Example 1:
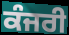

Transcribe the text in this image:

ਕੰਜਰੀ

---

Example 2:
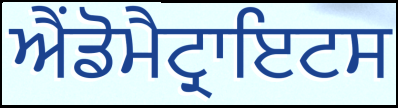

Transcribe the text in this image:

ਐਂਡੋਮੈਟ੍ਰਾਇਟਸ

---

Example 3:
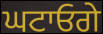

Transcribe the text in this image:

ਘਟਾਓਗੇ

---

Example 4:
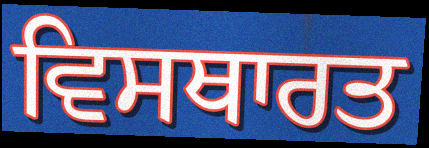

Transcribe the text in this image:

ਵਿਸਥਾਰਤ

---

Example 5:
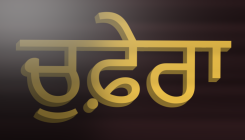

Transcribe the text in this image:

ਚੁਫ਼ੇਰਾ